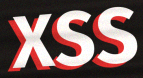
xss